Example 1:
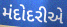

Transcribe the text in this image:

મંદોદરીએ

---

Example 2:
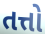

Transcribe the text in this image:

તત્તો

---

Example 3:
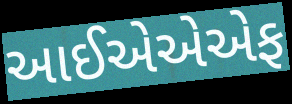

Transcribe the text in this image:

આઈએએએફ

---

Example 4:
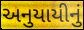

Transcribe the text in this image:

અનુયાયીનું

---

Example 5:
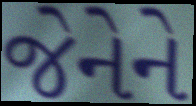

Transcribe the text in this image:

જેનેને